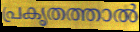
പ്രകൃതത്താൽ